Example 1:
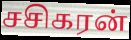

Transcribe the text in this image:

சசிகரன்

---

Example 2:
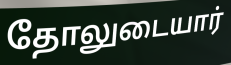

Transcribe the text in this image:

தோலுடையார்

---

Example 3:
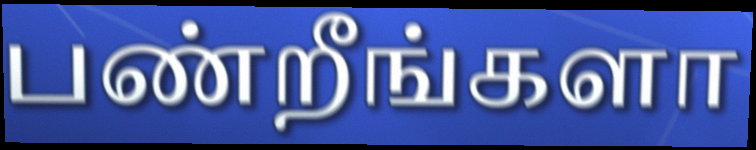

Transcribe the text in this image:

பண்றீங்களா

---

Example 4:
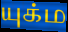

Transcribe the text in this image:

யுக்ம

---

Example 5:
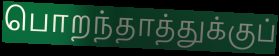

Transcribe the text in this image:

பொறந்தாத்துக்குப்